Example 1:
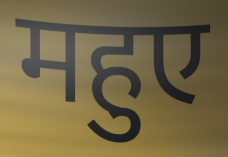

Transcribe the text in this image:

महुए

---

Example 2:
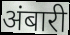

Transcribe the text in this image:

अंबारी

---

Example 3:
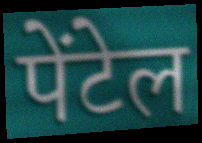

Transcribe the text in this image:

पेंटेल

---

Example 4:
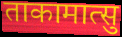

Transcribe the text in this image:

ताकामात्सु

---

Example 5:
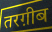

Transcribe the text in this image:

तरग़ीब